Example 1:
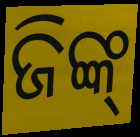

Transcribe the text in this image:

ଜିଙ୍କ୍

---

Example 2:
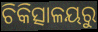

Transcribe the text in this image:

ଚିକିତ୍ସାଳୟରୁ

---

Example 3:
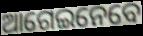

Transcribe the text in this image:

ଆଗେଇନେବେ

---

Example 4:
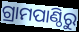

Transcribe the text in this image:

ଗ୍ରାମପାଣ୍ଠିରୁ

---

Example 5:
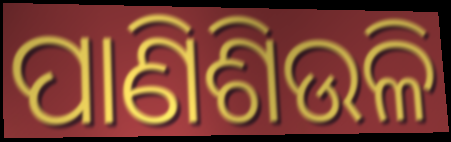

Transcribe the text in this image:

ପାଣିଶିଉଳି